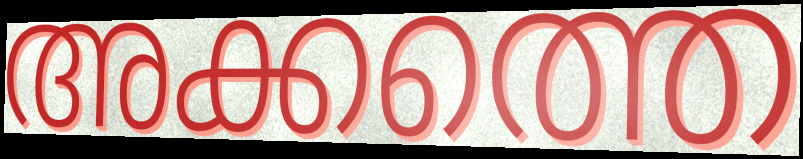
അക്കത്തെ